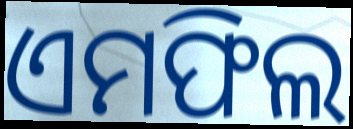
ଏମଫିଲ